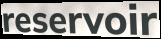
reservoir